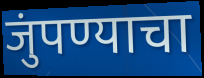
जुंपण्याचा